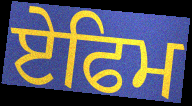
ਏਫਿਮ